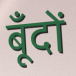
बूँदों